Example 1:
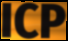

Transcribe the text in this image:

ICP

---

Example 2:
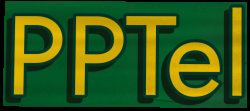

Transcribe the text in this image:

PPTel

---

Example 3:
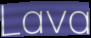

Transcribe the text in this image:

Lava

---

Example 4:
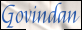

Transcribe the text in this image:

Govindan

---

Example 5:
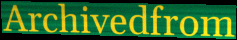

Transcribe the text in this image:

Archivedfrom